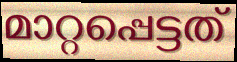
മാറ്റപ്പെട്ടത്